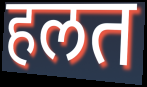
हलत